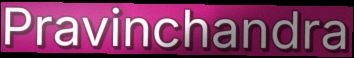
Pravinchandra